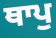
ਥਾਪੁ